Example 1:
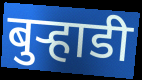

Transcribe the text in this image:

बुऱ्हाडी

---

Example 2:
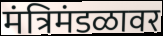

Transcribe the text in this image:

मंत्रिमंडळावर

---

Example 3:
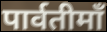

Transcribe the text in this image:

पार्वतीमाँ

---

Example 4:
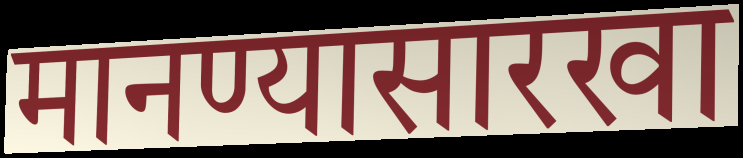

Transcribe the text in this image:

मानण्यासारखा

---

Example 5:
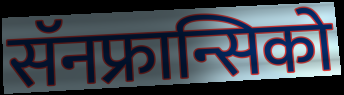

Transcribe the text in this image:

सॅनफ्रान्सिको